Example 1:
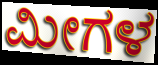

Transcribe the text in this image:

ಮೀಗಳ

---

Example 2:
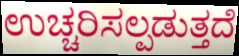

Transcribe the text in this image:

ಉಚ್ಚರಿಸಲ್ಪಡುತ್ತದೆ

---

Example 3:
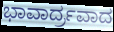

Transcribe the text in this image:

ಭಾವಾರ್ದ್ರವಾದ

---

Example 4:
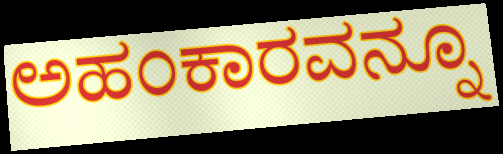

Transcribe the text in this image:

ಅಹಂಕಾರವನ್ನೂ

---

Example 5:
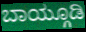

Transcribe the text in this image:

ಬಾಯ್ಗೂಡಿ